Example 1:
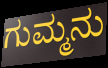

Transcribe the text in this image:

ಗುಮ್ಮನು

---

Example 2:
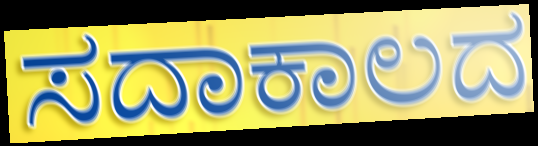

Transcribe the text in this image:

ಸದಾಕಾಲದ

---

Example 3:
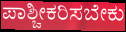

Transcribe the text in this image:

ಪಾಶ್ಚೀಕರಿಸಬೇಕು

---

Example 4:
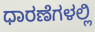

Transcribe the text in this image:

ಧಾರಣೆಗಳಲ್ಲಿ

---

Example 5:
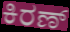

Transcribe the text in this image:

ಕಿರಣ್